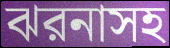
ঝরনাসহ